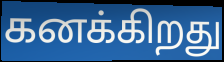
கனக்கிறது